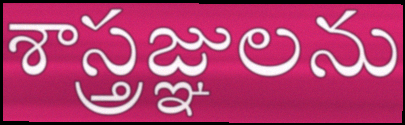
శాస్త్రజ్ఞులను